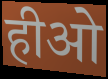
हीओ